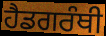
ਹੈਡਗਰੰਥੀ